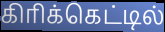
கிரிக்கெட்டில்